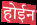
होईन